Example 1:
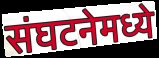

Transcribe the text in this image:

संघटनेमध्ये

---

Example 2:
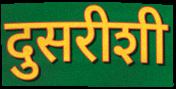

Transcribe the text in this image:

दुसरीशी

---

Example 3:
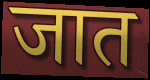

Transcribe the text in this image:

जात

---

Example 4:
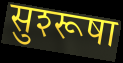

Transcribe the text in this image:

सुश्रूषा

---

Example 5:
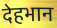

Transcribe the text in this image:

देहभान